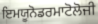
ਇਮਯੂਨੋਡਰਮਾਟੋਲੋਜੀ